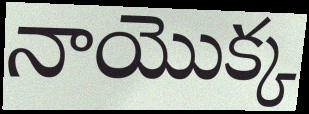
నాయొక్క